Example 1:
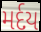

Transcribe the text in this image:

મર્દય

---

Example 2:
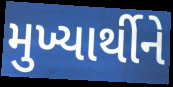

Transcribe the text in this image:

મુખ્યાર્થીને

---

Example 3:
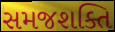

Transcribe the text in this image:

સમજશક્તિ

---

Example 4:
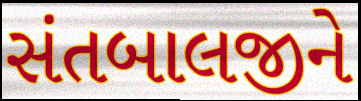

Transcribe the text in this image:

સંતબાલજીને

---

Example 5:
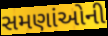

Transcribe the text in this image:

સમણાંઓની